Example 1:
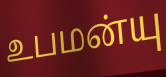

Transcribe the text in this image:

உபமன்யு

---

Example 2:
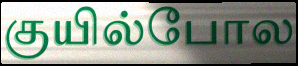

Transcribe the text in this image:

குயில்போல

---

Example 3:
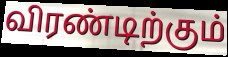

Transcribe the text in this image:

விரண்டிற்கும்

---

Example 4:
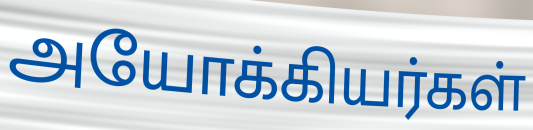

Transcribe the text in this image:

அயோக்கியர்கள்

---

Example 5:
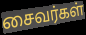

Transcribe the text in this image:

சைவர்கள்